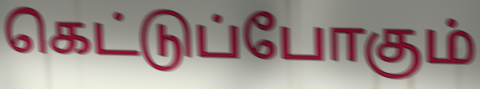
கெட்டுப்போகும்